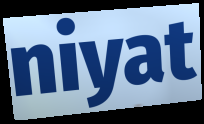
niyat